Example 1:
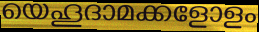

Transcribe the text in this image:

യെഹൂദാമക്കളോളം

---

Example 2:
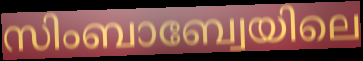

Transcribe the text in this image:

സിംബാബ്വേയിലെ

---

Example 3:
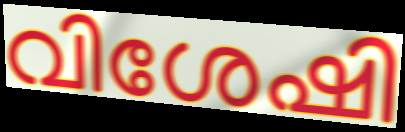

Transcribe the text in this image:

വിശേഷി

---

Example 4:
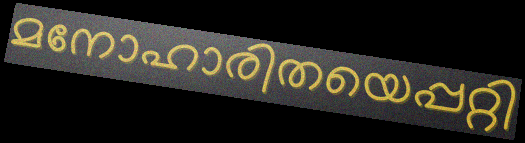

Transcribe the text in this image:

മനോഹാരിതയെപ്പറ്റി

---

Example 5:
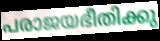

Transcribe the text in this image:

പരാജയഭീതിക്കു